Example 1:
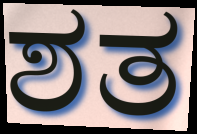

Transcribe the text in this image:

ಶತ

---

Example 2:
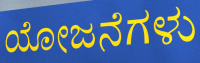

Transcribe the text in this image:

ಯೋಜನೆಗಳು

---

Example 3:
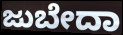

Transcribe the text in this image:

ಜುಬೇದಾ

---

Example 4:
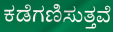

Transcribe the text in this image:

ಕಡೆಗಣಿಸುತ್ತವೆ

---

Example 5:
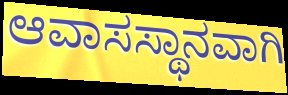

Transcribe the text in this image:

ಆವಾಸಸ್ಥಾನವಾಗಿ